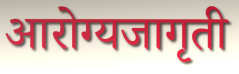
आरोग्यजागृती